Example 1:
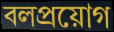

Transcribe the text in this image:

বলপ্রয়োগ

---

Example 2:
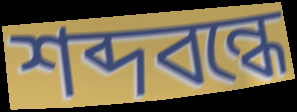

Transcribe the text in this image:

শব্দবন্ধে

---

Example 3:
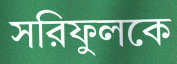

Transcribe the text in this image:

সরিফুলকে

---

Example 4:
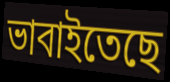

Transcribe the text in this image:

ভাবাইতেছে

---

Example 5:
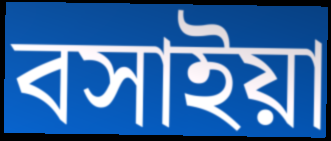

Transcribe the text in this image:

বসাইয়া